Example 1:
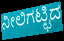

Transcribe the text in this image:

ನೀಲಿಗಟ್ಟಿದ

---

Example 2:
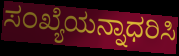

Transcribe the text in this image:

ಸಂಖ್ಯೆಯನ್ನಾಧರಿಸಿ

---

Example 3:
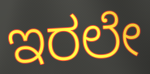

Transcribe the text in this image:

ಇರಲೇ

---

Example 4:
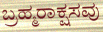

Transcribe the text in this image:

ಬ್ರಹ್ಮರಾಕ್ಷಸವು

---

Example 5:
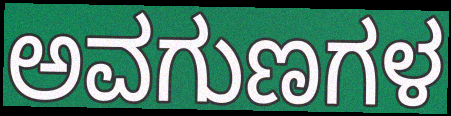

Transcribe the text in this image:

ಅವಗುಣಗಳ